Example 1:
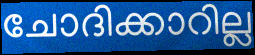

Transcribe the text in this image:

ചോദിക്കാറില്ല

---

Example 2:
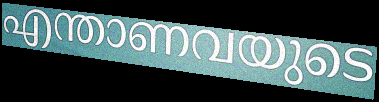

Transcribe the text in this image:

എന്താണവയുടെ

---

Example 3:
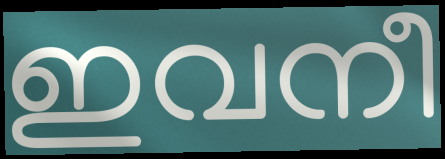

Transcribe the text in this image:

ഇവനീ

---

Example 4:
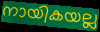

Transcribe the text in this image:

നായികയല്ല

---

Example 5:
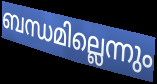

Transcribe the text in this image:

ബന്ധമില്ലെന്നും